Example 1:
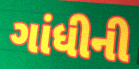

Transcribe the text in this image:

ગાંધીની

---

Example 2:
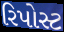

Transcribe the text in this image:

રિપોસ્ટ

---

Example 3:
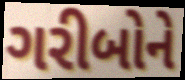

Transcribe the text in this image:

ગરીબોને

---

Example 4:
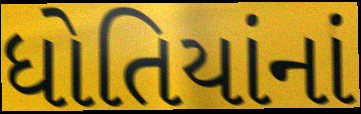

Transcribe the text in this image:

ધોતિયાંનાં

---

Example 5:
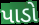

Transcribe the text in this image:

પાડો